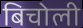
बिचोली